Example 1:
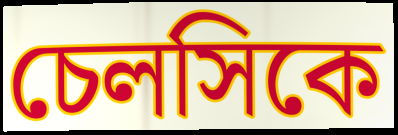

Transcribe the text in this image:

চেলসিকে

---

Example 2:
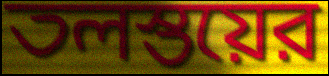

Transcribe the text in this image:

তলস্তয়ের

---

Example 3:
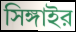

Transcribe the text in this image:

সিঙ্গাইর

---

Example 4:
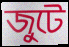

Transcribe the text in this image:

জুটে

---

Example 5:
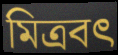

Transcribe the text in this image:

মিত্রবৎ